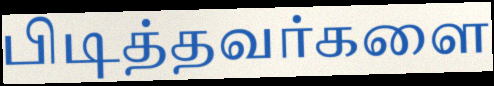
பிடித்தவர்களை